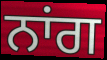
ਨਾਂਗ